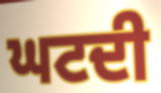
ਘਟਦੀ